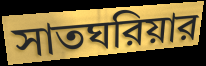
সাতঘরিয়ার